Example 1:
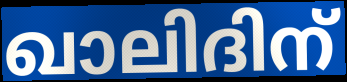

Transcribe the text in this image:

ഖാലിദിന്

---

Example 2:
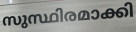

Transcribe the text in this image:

സുസ്ഥിരമാക്കി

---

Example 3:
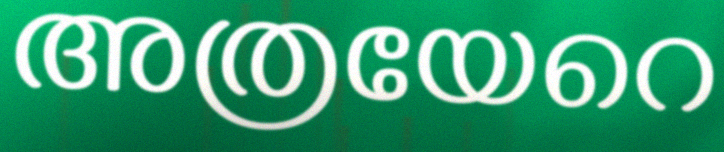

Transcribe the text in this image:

അത്രയേറെ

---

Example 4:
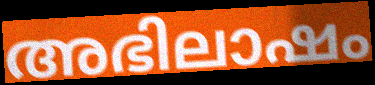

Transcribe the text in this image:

അഭിലാഷം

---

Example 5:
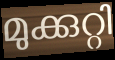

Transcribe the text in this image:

മുക്കുറ്റി